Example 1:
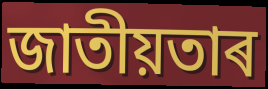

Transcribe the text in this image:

জাতীয়তাৰ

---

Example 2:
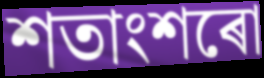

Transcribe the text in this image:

শতাংশৰো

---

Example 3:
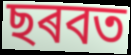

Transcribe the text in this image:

ছৰবত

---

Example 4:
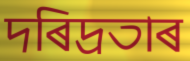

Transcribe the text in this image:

দৰিদ্ৰতাৰ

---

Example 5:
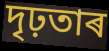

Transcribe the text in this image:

দৃঢ়তাৰ